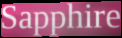
Sapphire